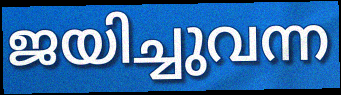
ജയിച്ചുവന്ന